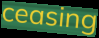
ceasing